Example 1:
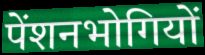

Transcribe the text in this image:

पेंशनभोगियों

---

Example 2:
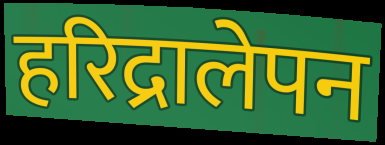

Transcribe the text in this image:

हरिद्रालेपन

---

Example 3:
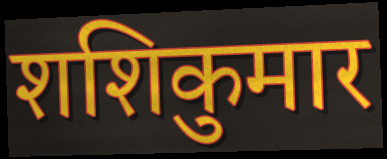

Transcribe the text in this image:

शशिकुमार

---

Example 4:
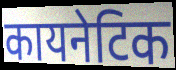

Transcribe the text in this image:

कायनेटिक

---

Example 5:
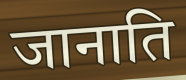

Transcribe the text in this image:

जानाति